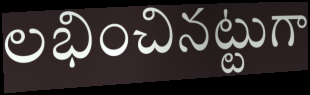
లభించినట్టుగా